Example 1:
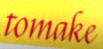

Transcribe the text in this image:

tomake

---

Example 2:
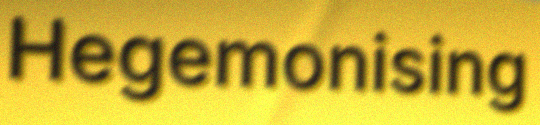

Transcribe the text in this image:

Hegemonising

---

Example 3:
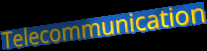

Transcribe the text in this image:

Telecommunication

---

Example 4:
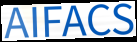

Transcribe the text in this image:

AIFACS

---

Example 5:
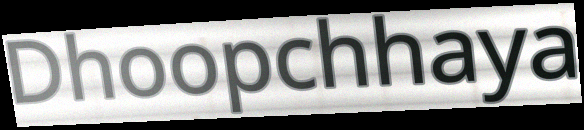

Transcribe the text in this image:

Dhoopchhaya